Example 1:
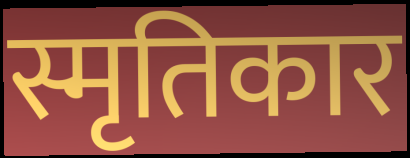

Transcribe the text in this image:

स्मृतिकार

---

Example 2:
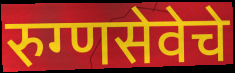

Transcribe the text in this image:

रुग्णसेवेचे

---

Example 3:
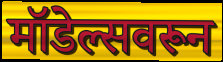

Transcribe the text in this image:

मॉडेल्सवरून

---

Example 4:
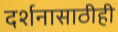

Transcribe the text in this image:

दर्शनासाठीही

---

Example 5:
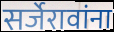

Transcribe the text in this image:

सर्जेरावांना